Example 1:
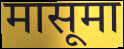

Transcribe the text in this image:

मासूमा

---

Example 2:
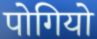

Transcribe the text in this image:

पोगियो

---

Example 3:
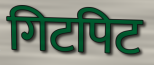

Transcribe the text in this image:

गिटपिट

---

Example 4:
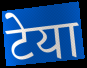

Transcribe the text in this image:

टेया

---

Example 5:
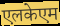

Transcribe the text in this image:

एलकेएम